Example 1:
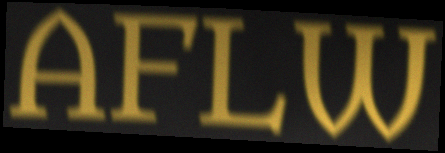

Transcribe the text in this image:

AFLW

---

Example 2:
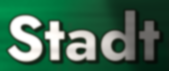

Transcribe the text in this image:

Stadt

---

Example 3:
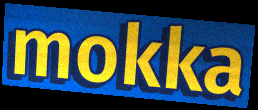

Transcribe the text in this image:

mokka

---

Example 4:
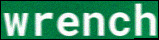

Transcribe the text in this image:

wrench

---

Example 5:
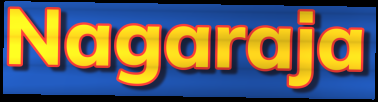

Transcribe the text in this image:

Nagaraja